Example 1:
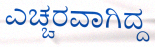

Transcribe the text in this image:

ಎಚ್ಚರವಾಗಿದ್ದ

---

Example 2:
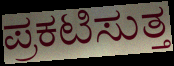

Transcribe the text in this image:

ಪ್ರಕಟಿಸುತ್ತ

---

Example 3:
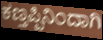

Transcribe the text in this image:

ಕಣ್ತಪ್ಪಿನಿಂದಾಗಿ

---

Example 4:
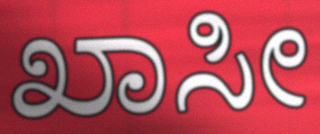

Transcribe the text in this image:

ಖಾಸೀ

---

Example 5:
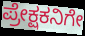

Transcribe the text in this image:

ಪ್ರೇಕ್ಷಕನಿಗೇ